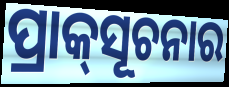
ପ୍ରାକ୍‌ସୂଚନାର